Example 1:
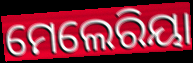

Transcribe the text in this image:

ମେଲେରିୟା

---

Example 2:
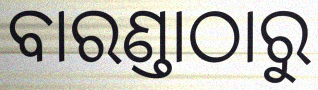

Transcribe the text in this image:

ବାରଣ୍ଡାଠାରୁ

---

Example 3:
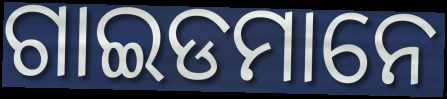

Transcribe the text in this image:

ଗାଇଡମାନେ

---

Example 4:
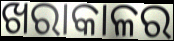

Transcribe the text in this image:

ଖରାକାଳର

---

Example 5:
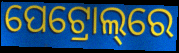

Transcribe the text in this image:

ପେଟ୍ରୋଲ୍‌ରେ